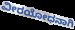
ವೀರಯೋಧನಾಗಿ